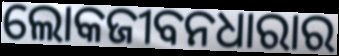
ଲୋକଜୀବନଧାରାର